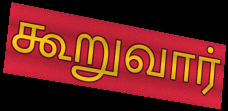
கூறுவார்